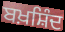
ਬਖ਼ਸ਼ਿੰਦ